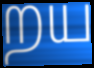
றய